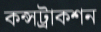
কন্সট্রাকশন